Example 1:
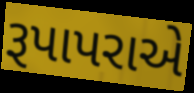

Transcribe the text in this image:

રૂપાપરાએ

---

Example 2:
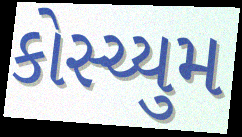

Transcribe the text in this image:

કોસ્ચ્યુમ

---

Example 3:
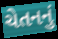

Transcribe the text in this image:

ચેતનનું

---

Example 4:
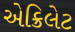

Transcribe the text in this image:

એક્રિલેટ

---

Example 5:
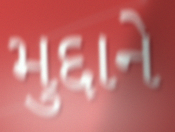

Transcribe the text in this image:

મુદ્દાને